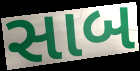
સાબ